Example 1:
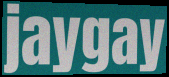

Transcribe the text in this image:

jaygay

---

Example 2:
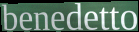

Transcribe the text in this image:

benedetto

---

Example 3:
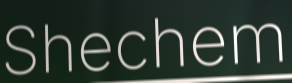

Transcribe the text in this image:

Shechem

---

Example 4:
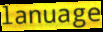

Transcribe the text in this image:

lanuage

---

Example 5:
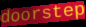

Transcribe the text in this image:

doorstep